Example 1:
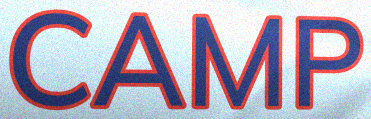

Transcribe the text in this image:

CAMP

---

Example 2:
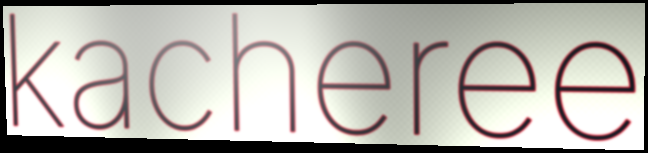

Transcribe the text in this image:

kacheree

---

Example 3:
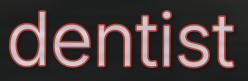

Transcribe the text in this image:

dentist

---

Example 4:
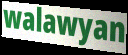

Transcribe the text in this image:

walawyan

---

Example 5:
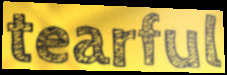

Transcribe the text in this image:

tearful